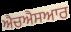
ਐਚਐਸਆਰ